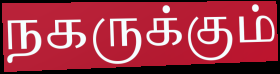
நகருக்கும்